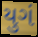
યુગં